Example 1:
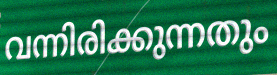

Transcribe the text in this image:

വന്നിരിക്കുന്നതും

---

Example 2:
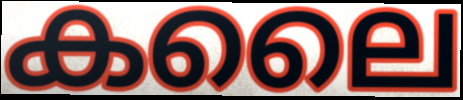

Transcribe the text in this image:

കലൈ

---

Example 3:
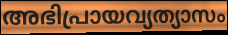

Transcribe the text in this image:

അഭിപ്രായവ്യത്യാസം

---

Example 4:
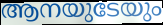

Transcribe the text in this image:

ആനയുടേയും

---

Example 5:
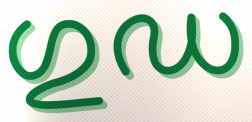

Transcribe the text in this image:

ഗുഡ